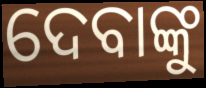
ଦେବାଙ୍କୁ